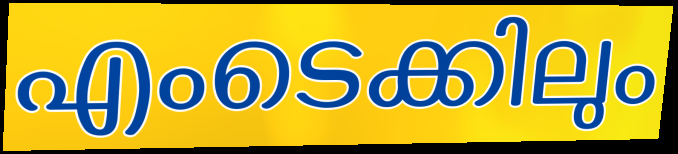
എംടെക്കിലും